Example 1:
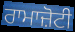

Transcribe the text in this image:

ਰਾਮਾਜ਼ੋਟੀ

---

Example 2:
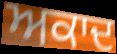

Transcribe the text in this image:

ਅਕਾਦ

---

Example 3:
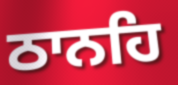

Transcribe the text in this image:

ਠਾਨਹਿ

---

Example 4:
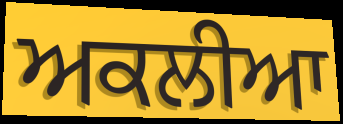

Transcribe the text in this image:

ਅਕਲੀਆ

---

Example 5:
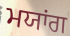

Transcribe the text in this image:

ਮਯਾਂਗ